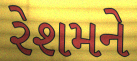
રેશમને